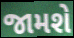
જામશે